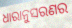
ଧାରାନୁସରଣର